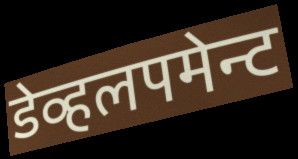
डेव्हलपमेन्ट